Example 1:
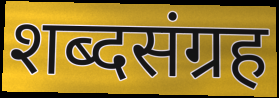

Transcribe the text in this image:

शब्दसंग्रह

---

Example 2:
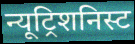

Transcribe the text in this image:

न्‍यूट्रिशनिस्‍ट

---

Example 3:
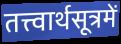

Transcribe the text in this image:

तत्त्वार्थसूत्रमें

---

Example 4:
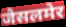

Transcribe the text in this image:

जैसलमेर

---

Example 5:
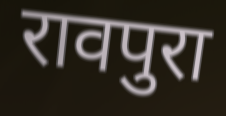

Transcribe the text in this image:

रावपुरा